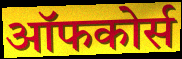
ऑफकोर्स